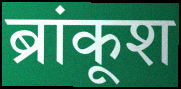
ब्रांकूश